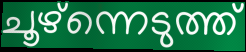
ചൂഴ്ന്നെടുത്ത്